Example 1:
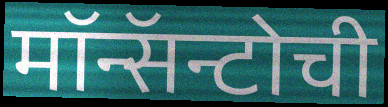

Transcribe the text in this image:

मॉन्सॅन्टोची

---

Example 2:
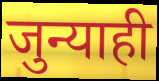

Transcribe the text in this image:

जुन्याही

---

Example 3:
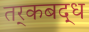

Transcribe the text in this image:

तर्कबद्ध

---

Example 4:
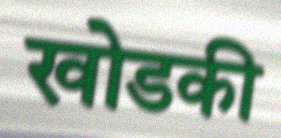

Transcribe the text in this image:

खोडकी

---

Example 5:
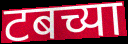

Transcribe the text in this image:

टबच्या